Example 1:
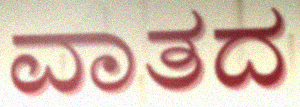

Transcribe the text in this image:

ವಾತದ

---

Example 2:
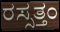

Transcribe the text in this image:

ರಸ್ಸತ್ತಂ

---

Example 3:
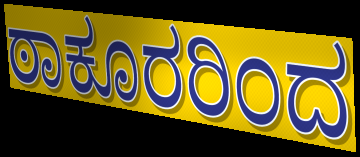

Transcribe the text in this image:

ಠಾಕೂರರಿಂದ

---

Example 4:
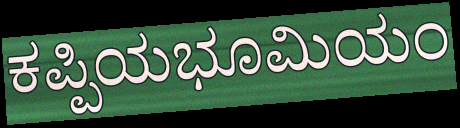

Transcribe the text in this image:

ಕಪ್ಪಿಯಭೂಮಿಯಂ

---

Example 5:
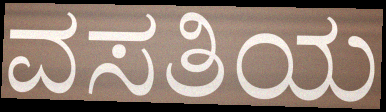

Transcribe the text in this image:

ವಸತಿಯ